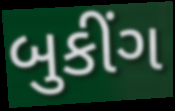
બુકીંગ